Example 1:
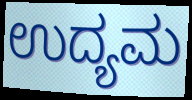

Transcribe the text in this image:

ಉದ್ಯಮ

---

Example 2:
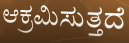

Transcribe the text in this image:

ಆಕ್ರಮಿಸುತ್ತದೆ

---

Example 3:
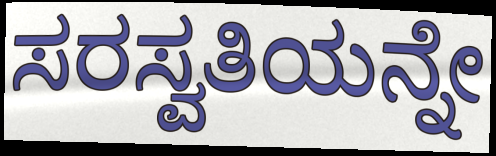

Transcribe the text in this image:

ಸರಸ್ವತಿಯನ್ನೇ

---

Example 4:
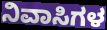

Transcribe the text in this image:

ನಿವಾಸಿಗಳ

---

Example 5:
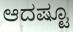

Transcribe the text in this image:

ಆದಷ್ಟೂ